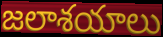
జలాశయాలు